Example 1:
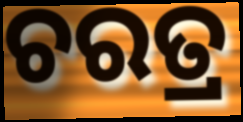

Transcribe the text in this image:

ଚରତ୍ର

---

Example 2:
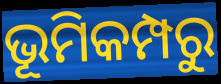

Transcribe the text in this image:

ଭୂମିକମ୍ପରୁ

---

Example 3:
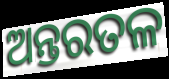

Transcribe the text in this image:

ଅନ୍ତରତଳ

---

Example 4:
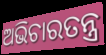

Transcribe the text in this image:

ଅଭିଚାରତନ୍ତ୍ର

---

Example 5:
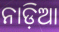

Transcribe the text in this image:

ନାଡ଼ିଆ